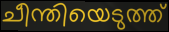
ചീന്തിയെടുത്ത്